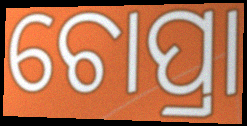
ଚୋପ୍ରା